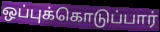
ஒப்புக்கொடுப்பார்